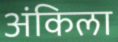
अंकिला